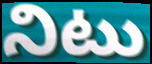
నిటు